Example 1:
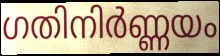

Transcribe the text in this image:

ഗതിനിർണ്ണയം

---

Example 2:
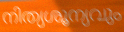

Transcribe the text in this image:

നിത്യശൂന്യവും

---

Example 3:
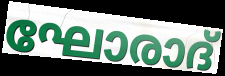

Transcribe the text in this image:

ഘോരാദ്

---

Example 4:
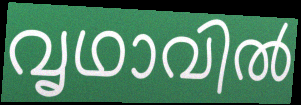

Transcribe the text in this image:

വൃഥാവിൽ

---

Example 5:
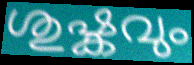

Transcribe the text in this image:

ശുഷ്കവും